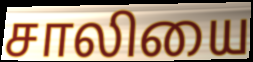
சாலியை